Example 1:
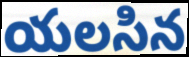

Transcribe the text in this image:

యలసిన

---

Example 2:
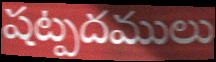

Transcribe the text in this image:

షట్పదములు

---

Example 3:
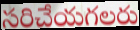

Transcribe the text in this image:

సరిచేయగలరు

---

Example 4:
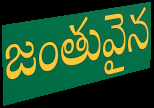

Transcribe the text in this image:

జంతువైన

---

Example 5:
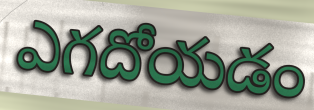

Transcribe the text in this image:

ఎగదోయడం